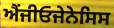
ਐਂਜੀਓਜੇਨੇਸਿਸ